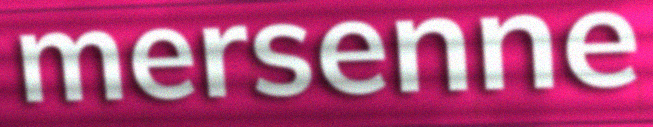
mersenne